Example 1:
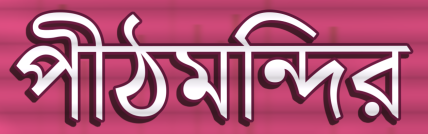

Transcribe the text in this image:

পীঠমন্দির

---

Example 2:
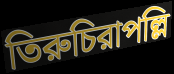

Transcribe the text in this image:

তিরুচিরাপল্লি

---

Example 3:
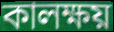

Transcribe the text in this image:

কালক্ষয়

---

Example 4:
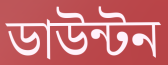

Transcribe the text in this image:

ডাউন্টন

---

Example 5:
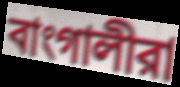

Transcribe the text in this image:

বাংগালীরা